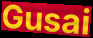
Gusai